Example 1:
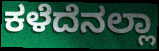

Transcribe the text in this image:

ಕಳೆದೆನಲ್ಲಾ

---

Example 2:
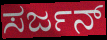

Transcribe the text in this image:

ಸರ್ಜನ್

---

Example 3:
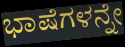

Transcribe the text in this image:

ಭಾಷೆಗಳನ್ನೇ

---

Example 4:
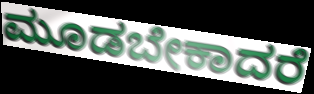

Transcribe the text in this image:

ಮೂಡಬೇಕಾದರೆ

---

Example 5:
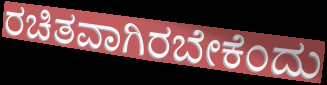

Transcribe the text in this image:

ರಚಿತವಾಗಿರಬೇಕೆಂದು